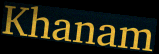
Khanam